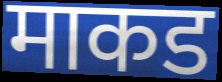
माकड